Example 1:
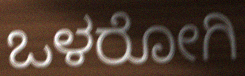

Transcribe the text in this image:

ಒಳರೋಗಿ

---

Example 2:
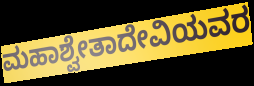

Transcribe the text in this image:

ಮಹಾಶ್ವೇತಾದೇವಿಯವರ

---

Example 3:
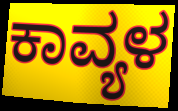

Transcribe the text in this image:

ಕಾವ್ಯಳ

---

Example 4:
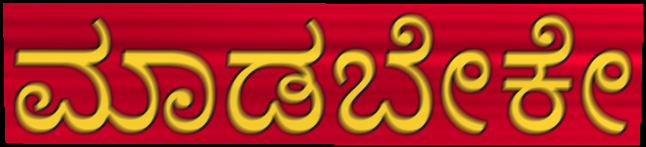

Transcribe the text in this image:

ಮಾಡಬೇಕೇ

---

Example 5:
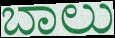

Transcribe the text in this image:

ಬಾಲು